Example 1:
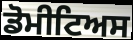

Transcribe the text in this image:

ਡੋਮੀਟਿਅਸ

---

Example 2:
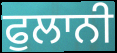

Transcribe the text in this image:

ਫੁਲਾਨੀ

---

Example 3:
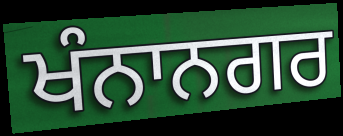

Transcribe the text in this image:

ਖੰਨਾਨਗਰ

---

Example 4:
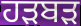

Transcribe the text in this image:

ਹੜਬੜ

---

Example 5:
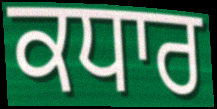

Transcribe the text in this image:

ਕਧਾਰ